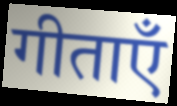
गीताएँ